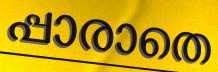
പ്പാരാതെ